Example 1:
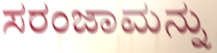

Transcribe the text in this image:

ಸರಂಜಾಮನ್ನು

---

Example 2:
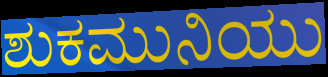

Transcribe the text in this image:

ಶುಕಮುನಿಯು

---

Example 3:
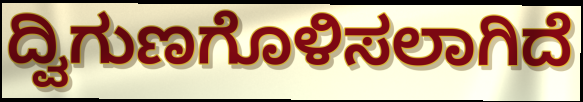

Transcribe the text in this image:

ದ್ವಿಗುಣಗೊಳಿಸಲಾಗಿದೆ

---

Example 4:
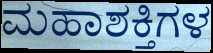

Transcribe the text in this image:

ಮಹಾಶಕ್ತಿಗಳ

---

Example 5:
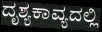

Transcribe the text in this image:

ದೃಶ್ಯಕಾವ್ಯದಲ್ಲಿ